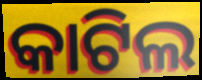
କାଟିଲ